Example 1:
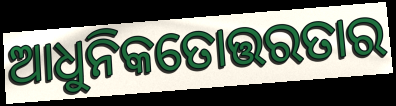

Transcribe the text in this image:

ଆଧୁନିକତୋତ୍ତରତାର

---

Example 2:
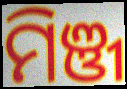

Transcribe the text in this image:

ମିଞ୍ଜ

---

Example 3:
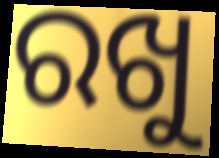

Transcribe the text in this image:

ରଖୁ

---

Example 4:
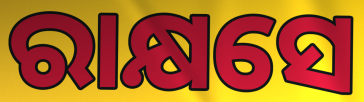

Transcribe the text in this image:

ରାକ୍ଷସେ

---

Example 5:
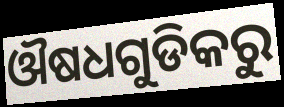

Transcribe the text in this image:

ଔଷଧଗୁଡିକରୁ